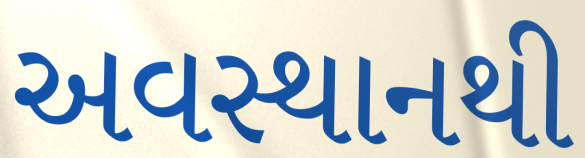
અવસ્થાનથી